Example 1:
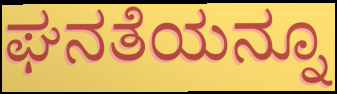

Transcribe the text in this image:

ಘನತೆಯನ್ನೂ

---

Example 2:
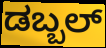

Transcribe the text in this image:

ಡಬ್ಬಲ್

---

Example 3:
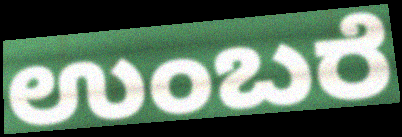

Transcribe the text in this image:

ಉಂಬರೆ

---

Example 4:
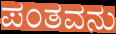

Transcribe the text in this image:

ಪಂತವನು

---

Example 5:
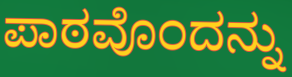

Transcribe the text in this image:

ಪಾಠವೊಂದನ್ನು